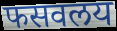
फसवलय